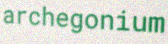
archegonium